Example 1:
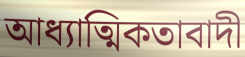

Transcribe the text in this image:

আধ্যাত্মিকতাবাদী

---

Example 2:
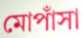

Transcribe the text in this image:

মোপাঁসা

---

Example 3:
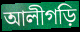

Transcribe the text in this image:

আলীগড়ি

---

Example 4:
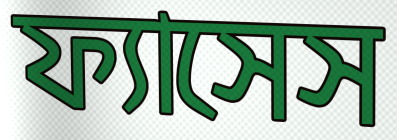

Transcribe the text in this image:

ফ্যাসেস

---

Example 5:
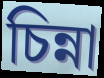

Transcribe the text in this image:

চিন্না